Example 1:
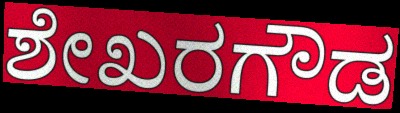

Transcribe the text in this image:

ಶೇಖರಗೌಡ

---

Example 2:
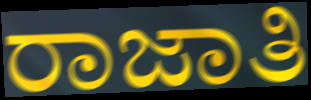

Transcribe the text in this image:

ರಾಜಾತಿ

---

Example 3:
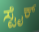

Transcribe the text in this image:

ಸ್ಟೈಕ್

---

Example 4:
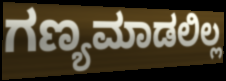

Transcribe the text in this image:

ಗಣ್ಯಮಾಡಲಿಲ್ಲ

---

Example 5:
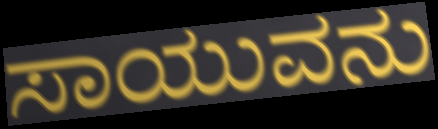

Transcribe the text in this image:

ಸಾಯುವನು